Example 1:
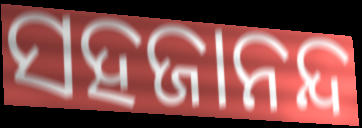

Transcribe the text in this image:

ସହଜାନନ୍ଦ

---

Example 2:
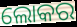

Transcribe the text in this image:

ଲୋକର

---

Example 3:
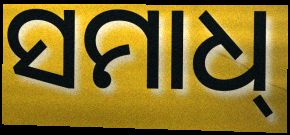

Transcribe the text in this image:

ସମାଧ୍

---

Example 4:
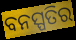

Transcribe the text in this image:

ବନସ୍ପତିର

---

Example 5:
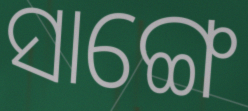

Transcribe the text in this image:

ସାଙ୍ଗେ